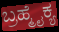
ಬ್ರಹ್ಮೈಕ್ಯ